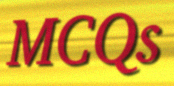
MCQs